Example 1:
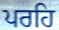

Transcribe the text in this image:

ਪਰਹਿ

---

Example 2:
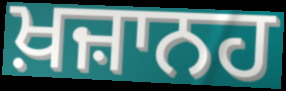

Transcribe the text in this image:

ਖ਼ਜ਼ਾਨਹ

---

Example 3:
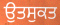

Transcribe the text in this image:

ਉਤਸੁਕਤ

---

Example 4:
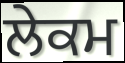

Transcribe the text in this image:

ਲੇਕਮ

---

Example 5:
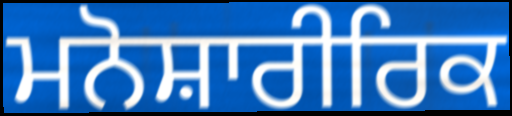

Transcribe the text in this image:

ਮਨੋਸ਼ਾਰੀਰਿਕ